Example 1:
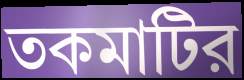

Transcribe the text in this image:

তকমাটির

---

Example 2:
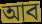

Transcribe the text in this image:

আব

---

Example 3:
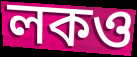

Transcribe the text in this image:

লকও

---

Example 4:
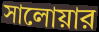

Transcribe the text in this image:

সালোয়ার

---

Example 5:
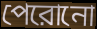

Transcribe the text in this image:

পেরোনো